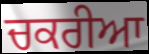
ਚਕਰੀਆ